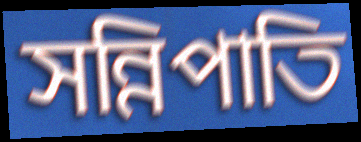
সন্নিপাতি